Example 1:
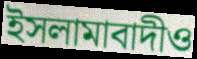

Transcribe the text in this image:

ইসলামাবাদীও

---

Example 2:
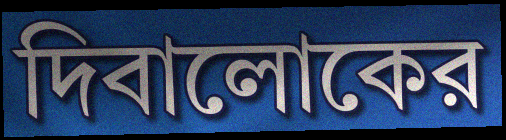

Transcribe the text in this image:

দিবালোকের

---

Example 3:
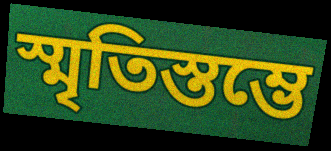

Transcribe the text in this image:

স্মৃতিস্তম্ভে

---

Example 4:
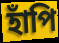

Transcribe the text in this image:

হাঁপি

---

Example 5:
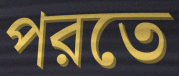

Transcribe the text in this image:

পরতে